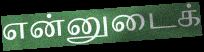
என்னுடைக்